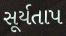
સૂર્યતાપ